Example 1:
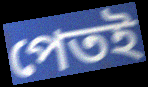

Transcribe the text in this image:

পেতই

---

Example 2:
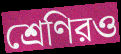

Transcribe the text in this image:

শ্রেণিরও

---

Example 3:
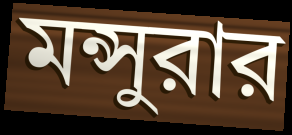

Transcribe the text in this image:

মন্সুরার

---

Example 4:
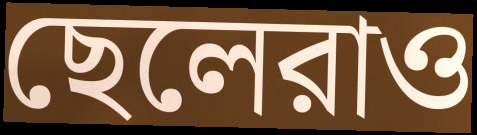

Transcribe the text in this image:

ছেলেরাও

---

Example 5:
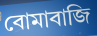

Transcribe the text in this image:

বোমাবাজি